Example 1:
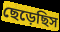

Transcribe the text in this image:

ছেড়েছিস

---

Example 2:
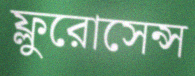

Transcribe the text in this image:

ফ্লুরোসেন্স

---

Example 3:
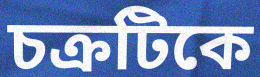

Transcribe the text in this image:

চক্রটিকে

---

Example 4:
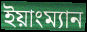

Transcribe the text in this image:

ইয়াংম্যান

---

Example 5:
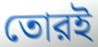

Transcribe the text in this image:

তোরই